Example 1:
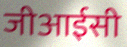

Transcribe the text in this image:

जीआईसी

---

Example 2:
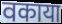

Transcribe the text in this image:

वकाया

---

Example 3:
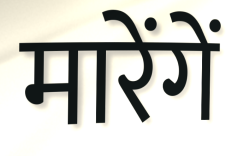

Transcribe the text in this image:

मारेंगें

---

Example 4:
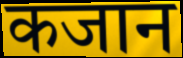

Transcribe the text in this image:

कजान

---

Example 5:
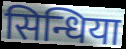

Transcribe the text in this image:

सिन्धिया